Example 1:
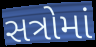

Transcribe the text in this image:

સત્રોમાં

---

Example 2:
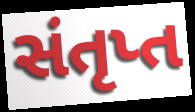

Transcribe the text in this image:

સંતૃપ્ત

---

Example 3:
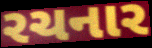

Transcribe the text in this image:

રચનાર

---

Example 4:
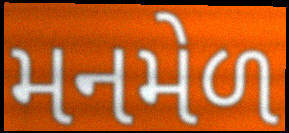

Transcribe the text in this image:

મનમેળ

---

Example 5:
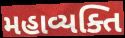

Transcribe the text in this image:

મહાવ્યક્તિ